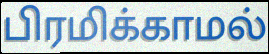
பிரமிக்காமல்